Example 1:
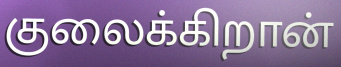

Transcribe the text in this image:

குலைக்கிறான்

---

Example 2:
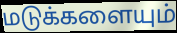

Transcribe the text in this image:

மடுக்களையும்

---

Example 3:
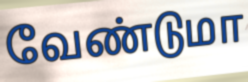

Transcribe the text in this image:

வேண்டுமா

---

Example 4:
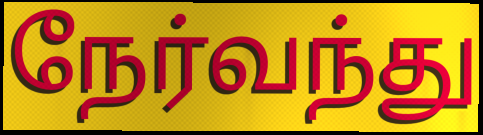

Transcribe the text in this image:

நேர்வந்து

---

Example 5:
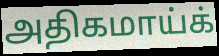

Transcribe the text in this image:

அதிகமாய்க்